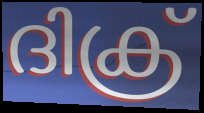
ദിക്ര്